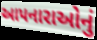
આપનારાઓનું